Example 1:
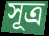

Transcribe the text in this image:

সূত্ৰ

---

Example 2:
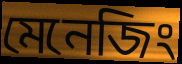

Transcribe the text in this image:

মেনেজিং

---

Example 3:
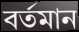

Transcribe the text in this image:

বৰ্তমান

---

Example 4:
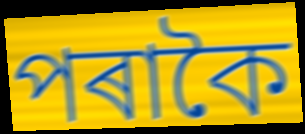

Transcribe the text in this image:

পৰাকৈ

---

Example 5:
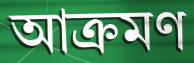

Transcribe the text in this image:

আক্ৰমণ